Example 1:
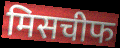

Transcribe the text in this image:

मिसचीफ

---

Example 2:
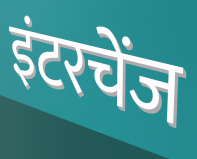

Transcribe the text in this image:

इंटरचेंज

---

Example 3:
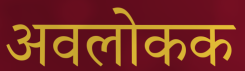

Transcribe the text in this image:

अवलोकक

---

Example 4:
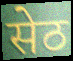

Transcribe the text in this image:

सेठ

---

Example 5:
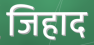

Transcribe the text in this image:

जिहाद